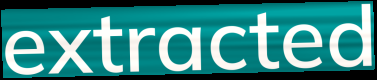
extracted